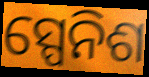
ସ୍ପେନିଶ